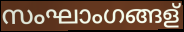
സംഘാംഗങ്ങള്